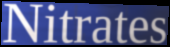
Nitrates